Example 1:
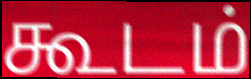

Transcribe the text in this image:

கூடம்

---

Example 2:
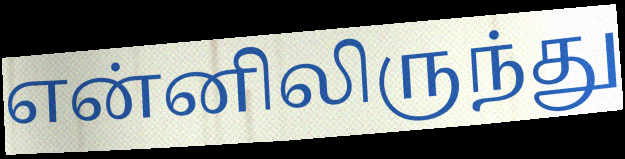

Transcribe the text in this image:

என்னிலிருந்து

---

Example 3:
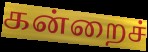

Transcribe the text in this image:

கன்றைச்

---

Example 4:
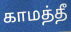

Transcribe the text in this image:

காமத்தீ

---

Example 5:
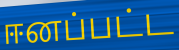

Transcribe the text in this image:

ஈனப்பட்ட